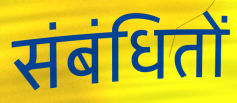
संबंधितों